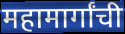
महामार्गांची